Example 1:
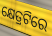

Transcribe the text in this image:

କ୍ଷେତ୍ରଟିରେ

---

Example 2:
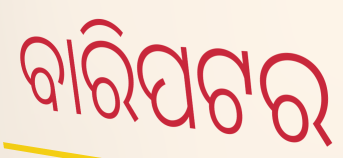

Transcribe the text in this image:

ବାରିପଟର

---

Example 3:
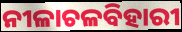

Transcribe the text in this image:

ନୀଳାଚଳବିହାରୀ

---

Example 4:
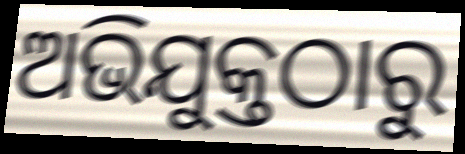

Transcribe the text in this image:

ଅଭିଯୁକ୍ତଠାରୁ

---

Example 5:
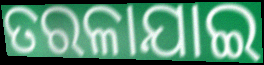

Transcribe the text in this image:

ତରଳାଯାଇ